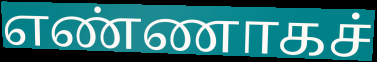
எண்ணாகச்